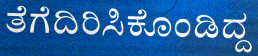
ತೆಗೆದಿರಿಸಿಕೊಂಡಿದ್ದ